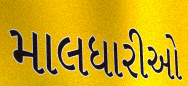
માલધારીઓ